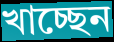
খাচ্ছেন